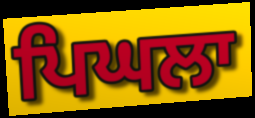
ਪਿਘਲਾ